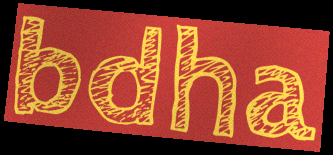
bdha